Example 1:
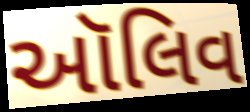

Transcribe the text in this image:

ઑલિવ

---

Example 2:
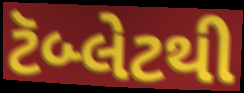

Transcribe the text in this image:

ટૅબ્લેટથી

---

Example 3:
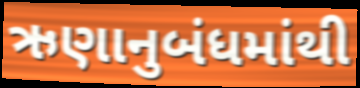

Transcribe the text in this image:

ઋણાનુબંધમાંથી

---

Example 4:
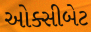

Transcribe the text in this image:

ઓક્સીબેટ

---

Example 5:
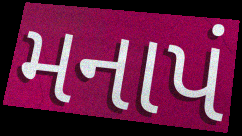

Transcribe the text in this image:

મનાપં